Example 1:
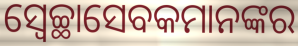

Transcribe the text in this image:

ସ୍ୱେଚ୍ଛାସେବକମାନଙ୍କର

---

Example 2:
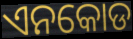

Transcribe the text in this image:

ଏନକୋଡ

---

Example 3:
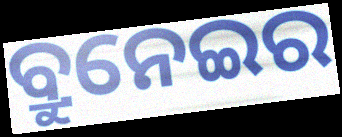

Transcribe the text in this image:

ବ୍ରୁନେଇର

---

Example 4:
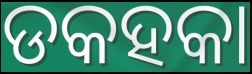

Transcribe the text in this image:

ଡକହକା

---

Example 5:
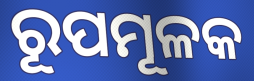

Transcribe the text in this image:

ରୂପମୂଳକ